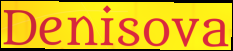
Denisova